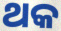
ଥକ